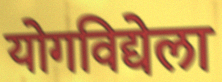
योगविद्येला